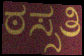
ಠಸ್ಸತಿ